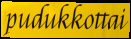
pudukkottai